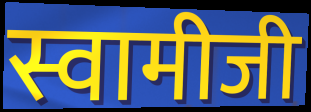
स्वामीजी